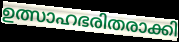
ഉത്സാഹഭരിതരാക്കി